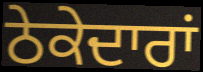
ਠੇਕੇਦਾਰਾਂ